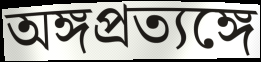
অঙ্গপ্রত্যঙ্গে